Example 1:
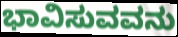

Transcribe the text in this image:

ಭಾವಿಸುವವನು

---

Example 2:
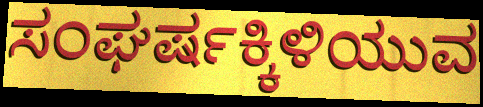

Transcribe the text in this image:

ಸಂಘರ್ಷಕ್ಕಿಳಿಯುವ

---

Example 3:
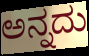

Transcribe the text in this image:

ಅನ್ನದು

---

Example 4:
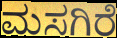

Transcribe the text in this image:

ಮಸಗಿರೆ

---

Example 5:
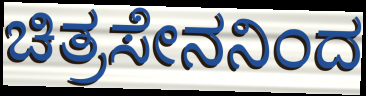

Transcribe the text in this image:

ಚಿತ್ರಸೇನನಿಂದ